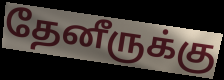
தேனீருக்கு